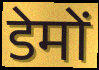
डेमों